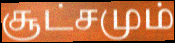
சூட்சமும்